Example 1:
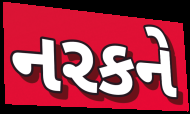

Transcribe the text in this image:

નરકને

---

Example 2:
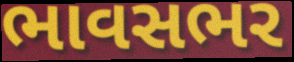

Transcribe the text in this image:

ભાવસભર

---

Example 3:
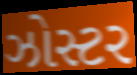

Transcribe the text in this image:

ઝોસ્ટર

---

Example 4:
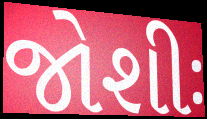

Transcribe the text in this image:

જોશીઃ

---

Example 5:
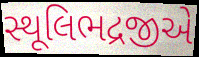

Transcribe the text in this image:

સ્થૂલિભદ્રજીએ